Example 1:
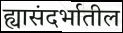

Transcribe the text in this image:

ह्यासंदर्भातील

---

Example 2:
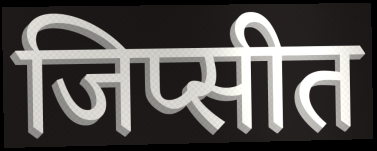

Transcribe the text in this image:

जिप्सीत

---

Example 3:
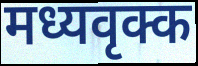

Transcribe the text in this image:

मध्यवृक्क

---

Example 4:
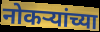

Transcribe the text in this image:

नोकर्‍यांच्या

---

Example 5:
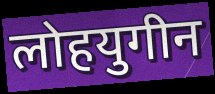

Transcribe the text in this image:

लोहयुगीन